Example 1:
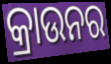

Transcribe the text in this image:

କ୍ରାଉନର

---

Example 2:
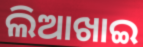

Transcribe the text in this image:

ଲିଆଖାଇ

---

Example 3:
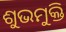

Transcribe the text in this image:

ଶୁଭମୁକ୍ତି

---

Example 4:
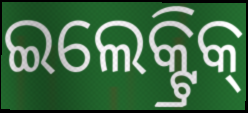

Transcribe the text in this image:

ଇଲେକ୍ଟ୍ରିକ୍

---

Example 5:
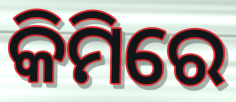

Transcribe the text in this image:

କିମିରେ